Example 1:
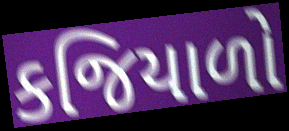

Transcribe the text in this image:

કજિયાળો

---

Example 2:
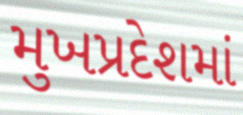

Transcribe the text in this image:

મુખપ્રદેશમાં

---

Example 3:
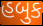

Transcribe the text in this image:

હબુક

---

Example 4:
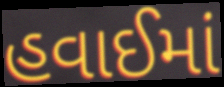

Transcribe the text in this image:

હવાઈમાં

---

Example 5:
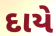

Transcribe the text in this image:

દાયે